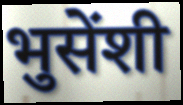
भुसेंशी